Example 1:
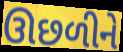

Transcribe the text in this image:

ઊછળીને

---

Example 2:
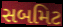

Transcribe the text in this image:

સબમિટ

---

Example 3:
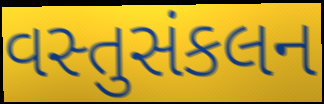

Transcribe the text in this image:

વસ્તુસંકલન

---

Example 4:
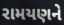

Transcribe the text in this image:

રામયણને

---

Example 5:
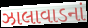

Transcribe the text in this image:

ઝાલાવાડનાં